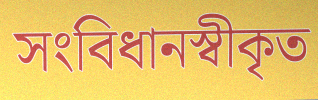
সংবিধানস্বীকৃত